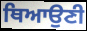
ਥਿਆਉਣੀ